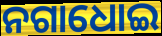
ନଗାଧୋଇ